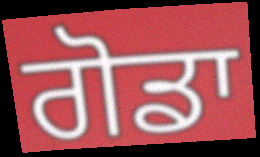
ਗੋਡਾ